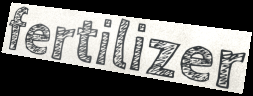
fertilizer